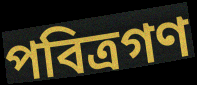
পবিত্রগণ